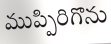
ముప్పిరిగొను